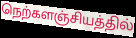
நெற்களஞ்சியத்தில்